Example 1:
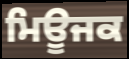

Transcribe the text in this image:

ਮਿਊਜਕ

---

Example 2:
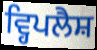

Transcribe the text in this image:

ਵ੍ਹਿਪਲੈਸ਼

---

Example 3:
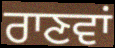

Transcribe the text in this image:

ਰਾਣਵਾਂ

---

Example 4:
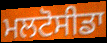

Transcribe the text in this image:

ਮਲਟੋਸੀਡਾ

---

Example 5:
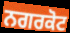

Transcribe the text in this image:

ਨਗਰਕੋਟ